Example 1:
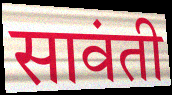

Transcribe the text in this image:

सावंती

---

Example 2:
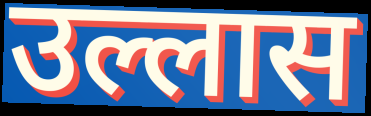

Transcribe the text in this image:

उल्लास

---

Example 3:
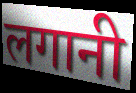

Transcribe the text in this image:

लगानी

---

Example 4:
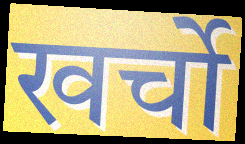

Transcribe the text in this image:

खर्चो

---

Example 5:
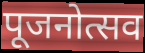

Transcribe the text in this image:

पूजनोत्सव